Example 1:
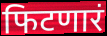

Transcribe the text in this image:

फिटणारं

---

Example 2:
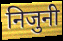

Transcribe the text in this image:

निजुनी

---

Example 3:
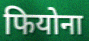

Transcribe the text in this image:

फियोना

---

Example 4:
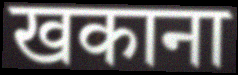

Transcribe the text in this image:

खकाना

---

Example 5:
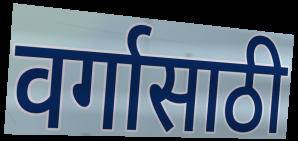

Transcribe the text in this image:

वर्गासाठी